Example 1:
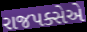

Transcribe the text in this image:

રાજપક્સેએ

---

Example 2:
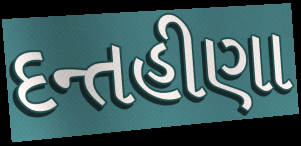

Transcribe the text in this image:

દન્તહીણા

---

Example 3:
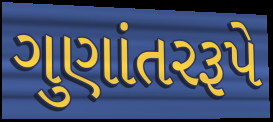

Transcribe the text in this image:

ગુણાંતરરૂપે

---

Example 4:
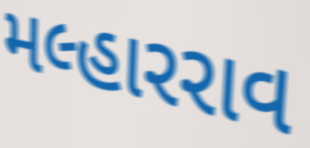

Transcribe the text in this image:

મલ્હારરાવ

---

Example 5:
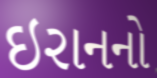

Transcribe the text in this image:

ઇરાનનો